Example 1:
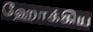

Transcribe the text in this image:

ஹோக்கிய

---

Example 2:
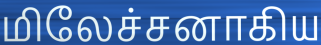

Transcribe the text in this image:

மிலேச்சனாகிய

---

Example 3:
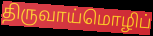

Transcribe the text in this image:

திருவாய்மொழிப்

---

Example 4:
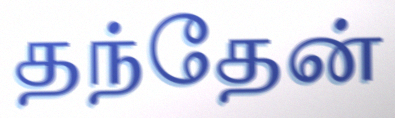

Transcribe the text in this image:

தந்தேன்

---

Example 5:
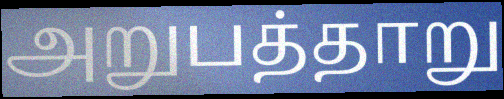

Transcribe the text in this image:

அறுபத்தாறு